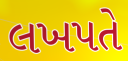
લખપતે